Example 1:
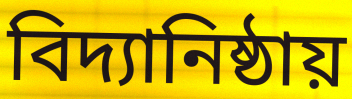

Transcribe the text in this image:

বিদ্যানিষ্ঠায়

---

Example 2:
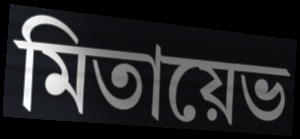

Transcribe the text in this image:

মিতায়েভ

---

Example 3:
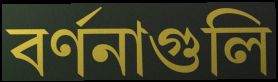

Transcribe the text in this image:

বর্ণনাগুলি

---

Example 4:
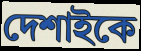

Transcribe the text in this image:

দেশাইকে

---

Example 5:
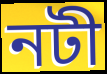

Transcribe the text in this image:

নটী